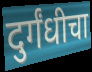
दुर्गंधीचा